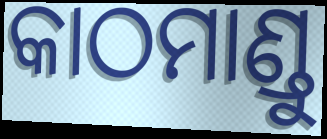
କାଠମାଣ୍ଡୁ